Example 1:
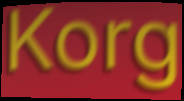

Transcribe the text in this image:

Korg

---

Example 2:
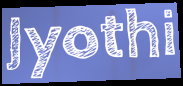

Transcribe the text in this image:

Jyothi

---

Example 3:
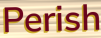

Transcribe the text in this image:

Perish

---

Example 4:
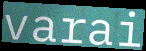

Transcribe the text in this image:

varai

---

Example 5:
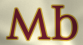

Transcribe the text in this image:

Mb